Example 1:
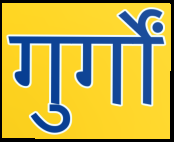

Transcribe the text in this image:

गुर्गों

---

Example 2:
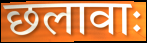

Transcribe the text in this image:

छलावाः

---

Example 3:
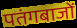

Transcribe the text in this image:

पतंगबाजों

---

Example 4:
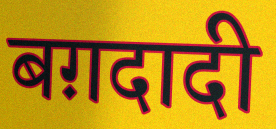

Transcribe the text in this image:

बग़दादी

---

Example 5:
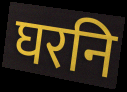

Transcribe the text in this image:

घरनि